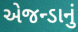
એજન્ડાનું